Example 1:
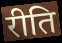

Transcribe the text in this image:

रीति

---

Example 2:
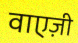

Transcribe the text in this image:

वाएज़ी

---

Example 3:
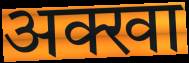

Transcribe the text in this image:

अक्खा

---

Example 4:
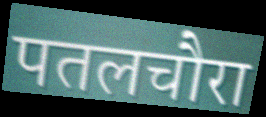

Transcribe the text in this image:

पतलचौरा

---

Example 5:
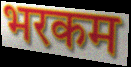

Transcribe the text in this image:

भरकम